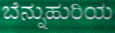
ಬೆನ್ನುಹುರಿಯ